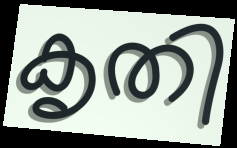
കൃതി